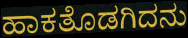
ಹಾಕತೊಡಗಿದನು